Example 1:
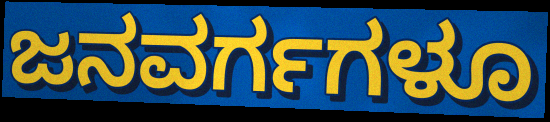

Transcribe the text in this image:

ಜನವರ್ಗಗಳೂ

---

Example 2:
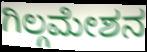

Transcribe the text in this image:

ಗಿಲ್ಗಮೇಶನ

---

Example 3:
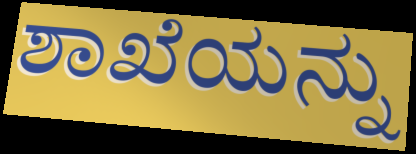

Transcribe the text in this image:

ಶಾಖೆಯನ್ನು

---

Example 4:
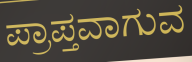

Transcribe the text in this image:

ಪ್ರಾಪ್ತವಾಗುವ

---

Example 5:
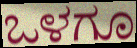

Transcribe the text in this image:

ಒಳಗೂ